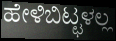
ಹೇಳಿಬಿಟ್ಟಳಲ್ಲ